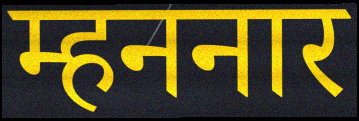
म्हननार